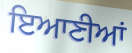
ਇਆਣੀਆਂ